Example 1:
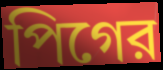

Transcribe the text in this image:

পিগের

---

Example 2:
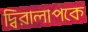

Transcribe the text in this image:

দ্বিরালাপকে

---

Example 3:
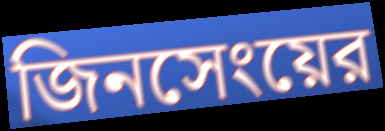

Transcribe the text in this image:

জিনসেংয়ের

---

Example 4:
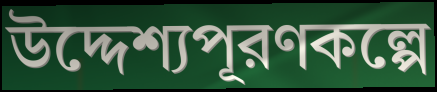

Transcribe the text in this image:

উদ্দেশ্যপূরণকল্পে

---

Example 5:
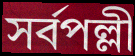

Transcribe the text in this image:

সর্বপল্লী